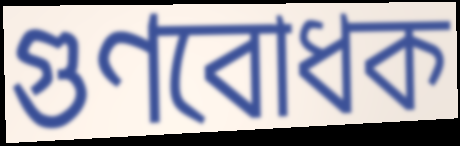
গুণবোধক